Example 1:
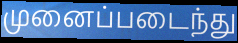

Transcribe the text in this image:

முனைப்படைந்து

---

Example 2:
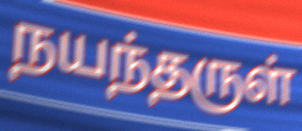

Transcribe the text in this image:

நயந்தருள்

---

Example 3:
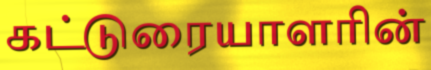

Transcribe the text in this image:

கட்டுரையாளரின்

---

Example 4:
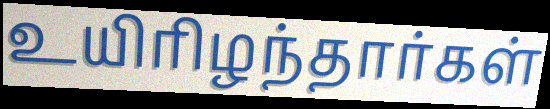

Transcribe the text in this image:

உயிரிழந்தார்கள்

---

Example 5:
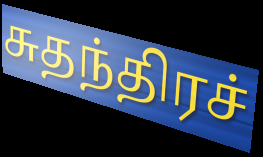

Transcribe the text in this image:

சுதந்திரச்